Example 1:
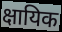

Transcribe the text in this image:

क्षायिक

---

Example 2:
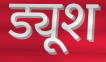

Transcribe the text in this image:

ड्यूश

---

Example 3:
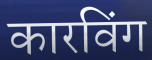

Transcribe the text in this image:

कारविंग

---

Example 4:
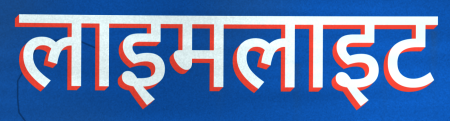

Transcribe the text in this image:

लाइमलाइट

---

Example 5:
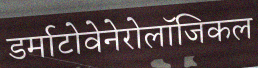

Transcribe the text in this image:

डर्माटोवेनेरोलॉजिकल